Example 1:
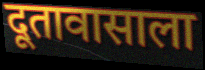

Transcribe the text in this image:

दूतावासाला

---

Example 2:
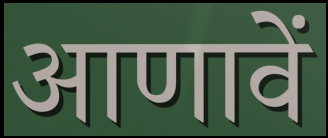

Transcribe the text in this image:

आणावें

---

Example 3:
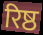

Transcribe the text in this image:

रिष्ठ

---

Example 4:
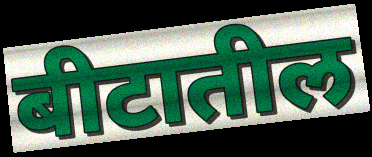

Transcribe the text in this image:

बीटातील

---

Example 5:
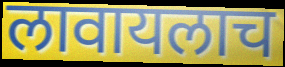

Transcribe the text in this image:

लावायलाच